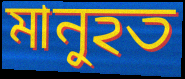
মানুহত